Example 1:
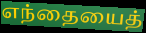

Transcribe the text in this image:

எந்தையைத்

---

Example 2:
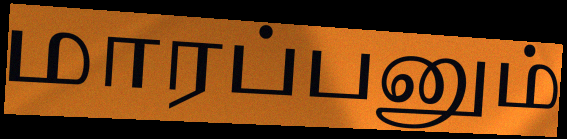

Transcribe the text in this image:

மாரப்பனும்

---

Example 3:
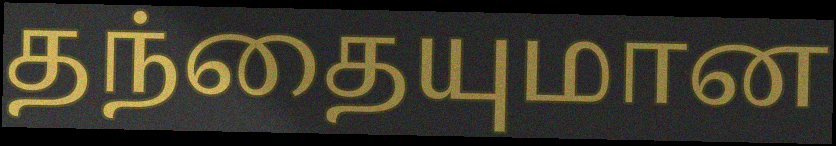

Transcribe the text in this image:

தந்தையுமான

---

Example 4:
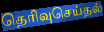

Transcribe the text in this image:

தெரிவுசெய்தல்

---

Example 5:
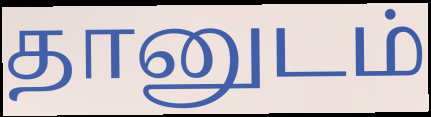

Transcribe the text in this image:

தானுடம்